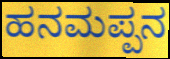
ಹನಮಪ್ಪನ